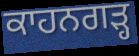
ਕਾਹਨਗੜ੍ਹ